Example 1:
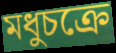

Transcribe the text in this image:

মধুচক্রে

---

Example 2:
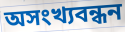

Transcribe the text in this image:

অসংখ্যবন্ধন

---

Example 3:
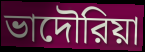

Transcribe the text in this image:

ভাদৌরিয়া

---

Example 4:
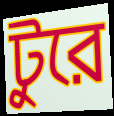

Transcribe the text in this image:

টুরে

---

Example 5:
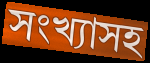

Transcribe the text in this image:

সংখ্যাসহ